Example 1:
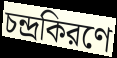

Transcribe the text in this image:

চন্দ্রকিরণে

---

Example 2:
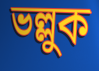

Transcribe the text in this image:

ভল্লুক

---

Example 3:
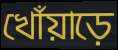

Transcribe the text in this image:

খোঁয়াড়ে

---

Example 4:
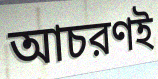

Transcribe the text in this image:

আচরণই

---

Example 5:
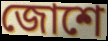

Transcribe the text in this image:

জোশে